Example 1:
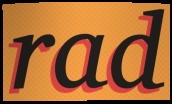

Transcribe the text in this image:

rad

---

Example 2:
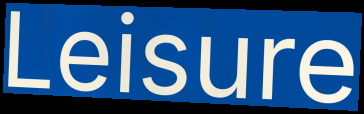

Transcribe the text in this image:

Leisure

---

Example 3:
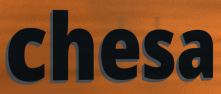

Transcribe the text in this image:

chesa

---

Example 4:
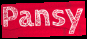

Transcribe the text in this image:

Pansy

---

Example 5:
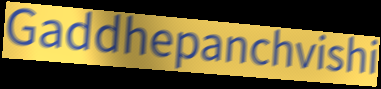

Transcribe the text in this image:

Gaddhepanchvishi